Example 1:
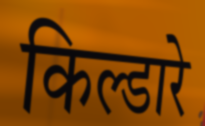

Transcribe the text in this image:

किल्डारे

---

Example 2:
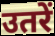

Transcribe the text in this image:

उतरें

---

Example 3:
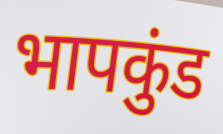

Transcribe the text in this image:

भापकुंड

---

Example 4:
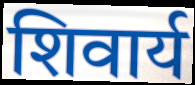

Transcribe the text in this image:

शिवार्य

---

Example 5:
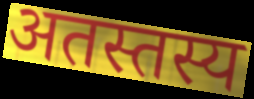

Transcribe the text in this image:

अतस्तस्य